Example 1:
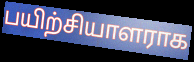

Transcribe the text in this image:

பயிற்சியாளராக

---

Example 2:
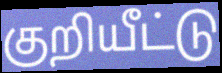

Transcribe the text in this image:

குறியீட்டு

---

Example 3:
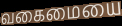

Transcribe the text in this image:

வகைமையை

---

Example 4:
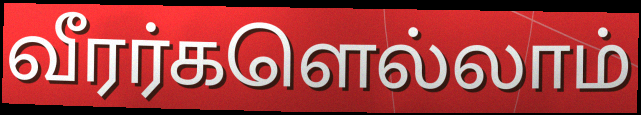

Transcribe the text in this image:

வீரர்களெல்லாம்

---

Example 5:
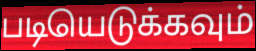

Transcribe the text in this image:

படியெடுக்கவும்